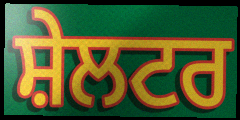
ਸ਼ੇਲਟਰ